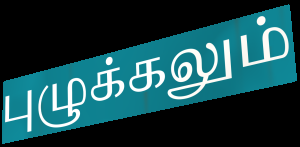
புழுக்கலும்